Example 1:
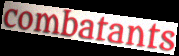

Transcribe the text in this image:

combatants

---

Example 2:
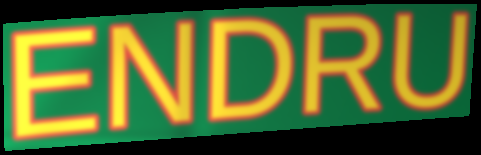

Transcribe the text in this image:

ENDRU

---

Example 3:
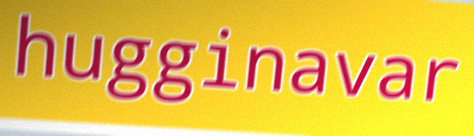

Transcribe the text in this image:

hugginavar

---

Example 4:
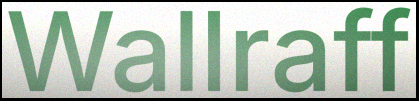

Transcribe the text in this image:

Wallraff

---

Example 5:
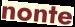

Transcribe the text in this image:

nonte